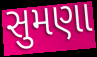
સુમણા